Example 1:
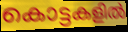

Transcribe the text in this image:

കൊട്ടകളിൽ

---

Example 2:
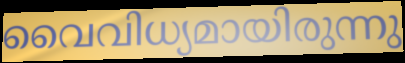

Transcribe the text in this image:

വൈവിധ്യമായിരുന്നു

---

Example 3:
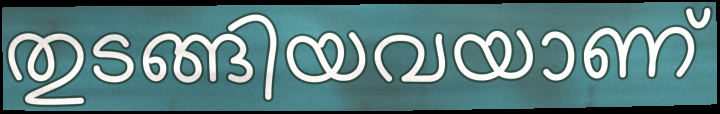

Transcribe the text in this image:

തുടങ്ങിയവയാണ്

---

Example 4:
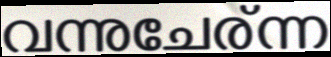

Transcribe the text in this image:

വന്നുചേര്ന്ന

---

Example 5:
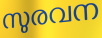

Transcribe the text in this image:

സുരവന